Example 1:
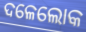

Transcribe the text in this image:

ଦଳେଲୋକ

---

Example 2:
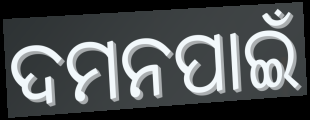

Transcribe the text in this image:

ଦମନପାଇଁ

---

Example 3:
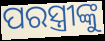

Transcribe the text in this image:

ପରସ୍ତ୍ରୀଙ୍କୁ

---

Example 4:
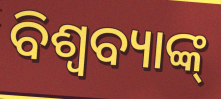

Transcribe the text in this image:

ବିଶ୍ଵବ୍ୟାଙ୍କ୍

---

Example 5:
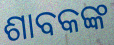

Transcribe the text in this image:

ଶାବକଙ୍କ